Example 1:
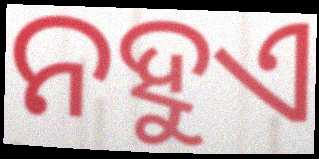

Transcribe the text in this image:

ନହୁଏ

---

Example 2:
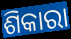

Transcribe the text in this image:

ଶିକାରା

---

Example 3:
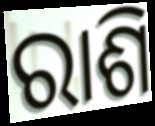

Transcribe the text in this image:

ରାଶି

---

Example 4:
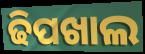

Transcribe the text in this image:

ଢିପଖାଲ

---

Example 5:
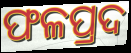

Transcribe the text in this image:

ଫଳପ୍ରଦ